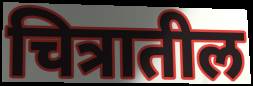
चित्रातील